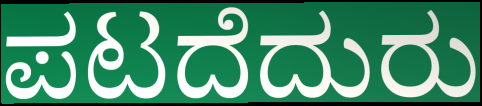
ಪಟದೆದುರು